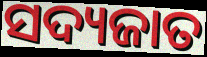
ସଦ୍ୟଜାତ